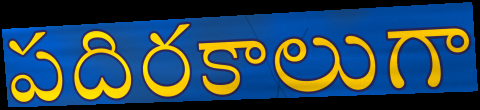
పదిరకాలుగా